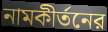
নামকীর্তনের